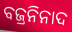
ବଜ୍ରନିନାଦ